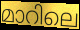
മാറിലെ